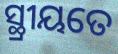
ସ୍ଥ୍ରୀୟତେ